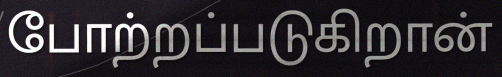
போற்றப்படுகிறான்